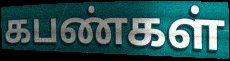
கபண்கள்